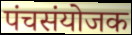
पंचसंयोजक